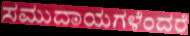
ಸಮುದಾಯಗಳೆಂದರೆ